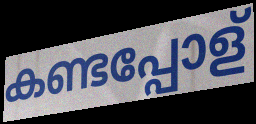
കണ്ടപ്പോള്